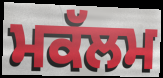
ਮਕੱਲਮ